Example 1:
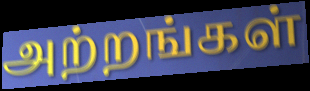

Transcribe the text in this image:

அற்றங்கள்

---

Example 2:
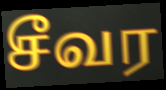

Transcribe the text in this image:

சீவர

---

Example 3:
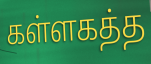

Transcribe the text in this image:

கள்ளகத்த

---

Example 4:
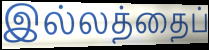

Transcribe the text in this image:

இல்லத்தைப்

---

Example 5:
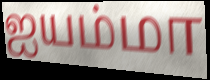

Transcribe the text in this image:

ஐயம்மா